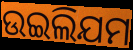
ଉଇଲିଯମ